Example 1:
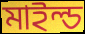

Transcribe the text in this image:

মাইল্ড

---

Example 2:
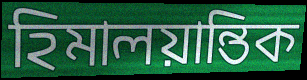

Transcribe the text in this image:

হিমালয়ান্তিক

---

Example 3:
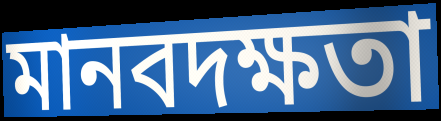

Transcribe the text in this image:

মানবদক্ষতা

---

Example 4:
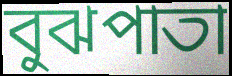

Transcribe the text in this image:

বুঝপাতা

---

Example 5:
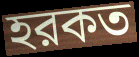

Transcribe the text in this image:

হরকত